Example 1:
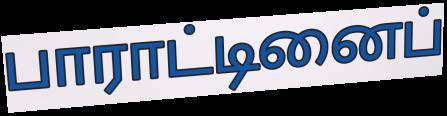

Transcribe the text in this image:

பாராட்டினைப்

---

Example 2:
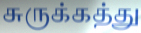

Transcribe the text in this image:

சுருக்கத்து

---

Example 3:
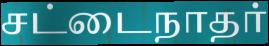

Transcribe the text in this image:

சட்டைநாதர்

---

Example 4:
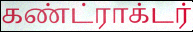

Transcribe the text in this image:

கண்ட்ராக்டர்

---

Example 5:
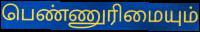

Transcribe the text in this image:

பெண்ணுரிமையும்